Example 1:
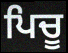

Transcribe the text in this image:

ਪਿਚੂ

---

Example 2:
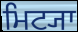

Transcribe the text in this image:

ਮਿਟ੍ਯਾ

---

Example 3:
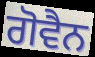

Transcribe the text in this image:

ਗੋਵੈਨ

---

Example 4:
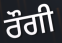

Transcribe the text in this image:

ਰੌਗੀ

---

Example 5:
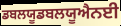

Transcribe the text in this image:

ਡਬਲਯੂਡਬਲਯੂਐਨਈ